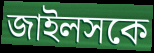
জাইলসকে